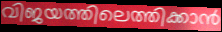
വിജയത്തിലെത്തിക്കാൻ